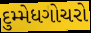
દુમ્મેધગોચરો